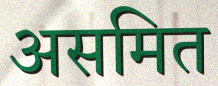
असमित